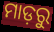
ମାଡ଼ରୁ